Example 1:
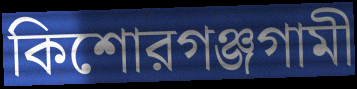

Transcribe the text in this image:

কিশোরগঞ্জগামী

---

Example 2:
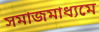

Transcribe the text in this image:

সমাজমাধ্যমে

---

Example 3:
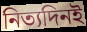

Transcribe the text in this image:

নিত্যদিনই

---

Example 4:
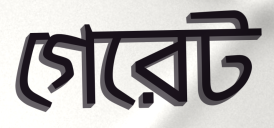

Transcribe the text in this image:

গেরেট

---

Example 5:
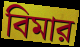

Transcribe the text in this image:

বিমার